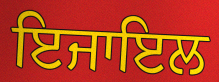
ਇਜਾਇਲ